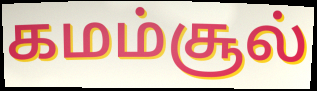
கமம்சூல்